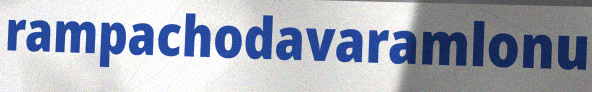
rampachodavaramlonu